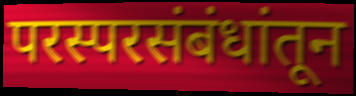
परस्परसंबंधांतून